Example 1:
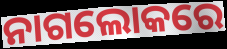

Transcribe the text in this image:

ନାଗଲୋକରେ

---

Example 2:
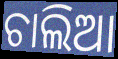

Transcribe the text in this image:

ଚାଲିଆ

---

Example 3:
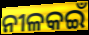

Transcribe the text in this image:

ନୀଳକଇଁ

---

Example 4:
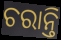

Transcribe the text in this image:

ଚରାନ୍ତି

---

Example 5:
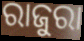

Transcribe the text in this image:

ରାଜୁରା